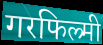
गरफिल्मी